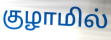
குழாமில்